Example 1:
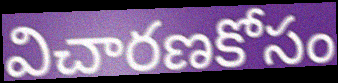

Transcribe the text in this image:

విచారణకోసం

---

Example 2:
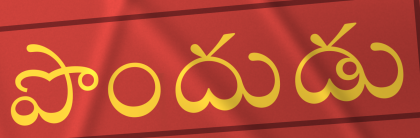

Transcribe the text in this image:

పొందుడు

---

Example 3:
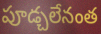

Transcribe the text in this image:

పూడ్చలేనంత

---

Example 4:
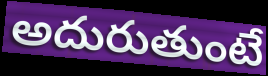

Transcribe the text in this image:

అదురుతుంటే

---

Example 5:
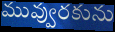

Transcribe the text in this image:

మువ్వురకును